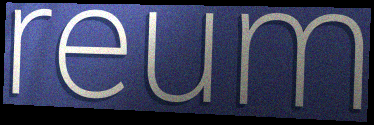
reum